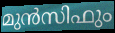
മുൻസിഫും